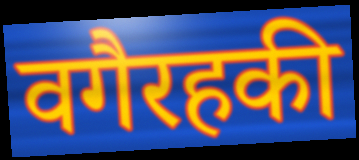
वगैरहकी